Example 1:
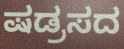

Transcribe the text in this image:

ಷಡ್ರಸದ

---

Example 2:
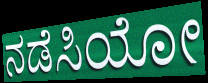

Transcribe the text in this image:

ನಡೆಸಿಯೋ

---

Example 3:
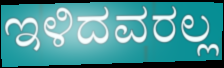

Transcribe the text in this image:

ಇಳಿದವರಲ್ಲ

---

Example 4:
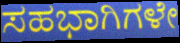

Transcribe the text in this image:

ಸಹಭಾಗಿಗಳೇ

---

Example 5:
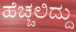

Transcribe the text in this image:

ಹೆಚ್ಚಲಿದ್ದು